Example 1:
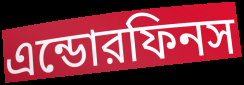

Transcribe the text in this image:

এন্ডোরফিনস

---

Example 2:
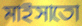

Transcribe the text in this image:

মাইসাতো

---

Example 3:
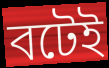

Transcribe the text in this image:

বটেই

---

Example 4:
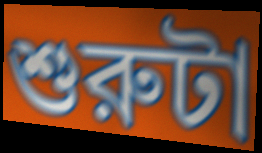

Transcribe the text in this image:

শুরুটা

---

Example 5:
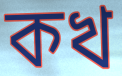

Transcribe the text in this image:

কখ